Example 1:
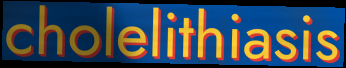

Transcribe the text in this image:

cholelithiasis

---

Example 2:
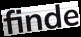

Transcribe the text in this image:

finde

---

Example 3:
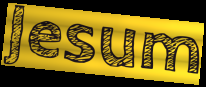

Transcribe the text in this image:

Jesum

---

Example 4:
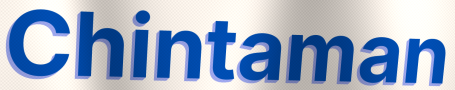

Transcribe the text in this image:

Chintaman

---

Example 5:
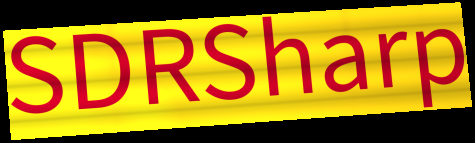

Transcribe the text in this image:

SDRSharp